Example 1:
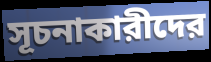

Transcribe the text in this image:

সূচনাকারীদের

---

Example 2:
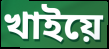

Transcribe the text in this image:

খাইয়ে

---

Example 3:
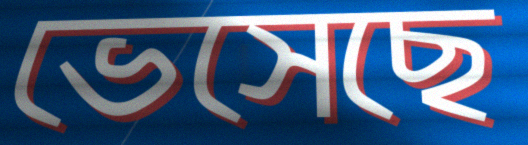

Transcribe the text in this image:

ভেসেছে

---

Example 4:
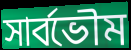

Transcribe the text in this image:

সার্বভৌম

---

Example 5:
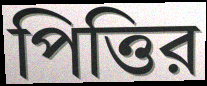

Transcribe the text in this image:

পিত্তির